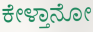
ಕೇಳ್ತಾನೋ